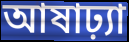
আষাঢ়্যা